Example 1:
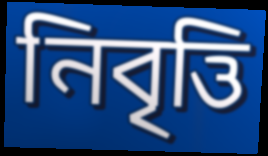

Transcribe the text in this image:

নিবৃত্তি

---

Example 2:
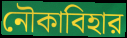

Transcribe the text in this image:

নৌকাবিহার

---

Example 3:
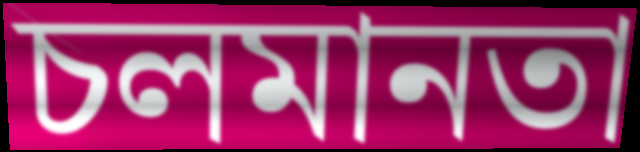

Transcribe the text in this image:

চলমানতা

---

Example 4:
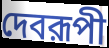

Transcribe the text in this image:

দেবরূপী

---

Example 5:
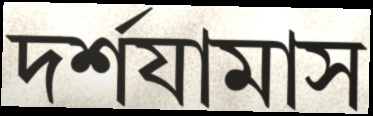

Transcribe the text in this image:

দর্শযামাস